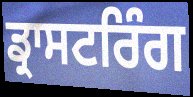
ਡ੍ਰਾਸਟਰਿੰਗ